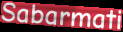
Sabarmati